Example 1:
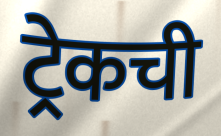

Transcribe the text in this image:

ट्रेकची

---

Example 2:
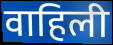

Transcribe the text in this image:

वाहिली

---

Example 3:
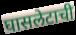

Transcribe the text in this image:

घासलेटाची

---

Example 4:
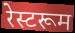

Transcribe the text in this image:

रेस्टरूम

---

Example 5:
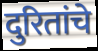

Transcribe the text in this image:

दुरितांचे